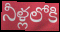
నీళ్లలోకి